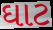
ઘાટ